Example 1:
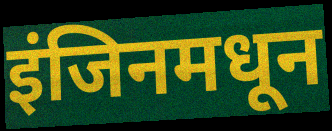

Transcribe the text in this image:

इंजिनमधून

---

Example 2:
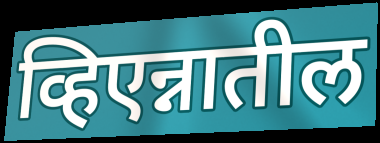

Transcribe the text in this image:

व्हिएन्नातील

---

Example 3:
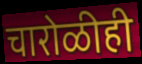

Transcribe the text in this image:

चारोळीही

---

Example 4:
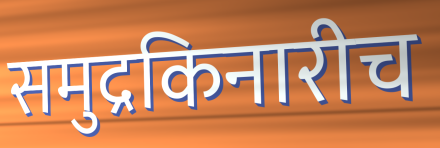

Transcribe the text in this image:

समुद्रकिनारीच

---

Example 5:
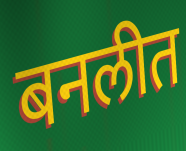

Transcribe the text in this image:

बनलीत